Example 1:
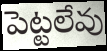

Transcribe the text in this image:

పెట్టలేవు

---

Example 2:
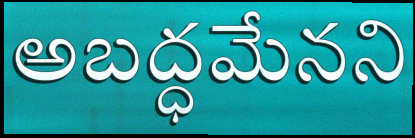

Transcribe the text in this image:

అబద్ధమేనని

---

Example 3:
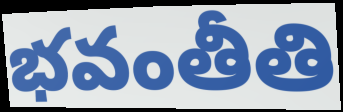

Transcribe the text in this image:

భవంతీతి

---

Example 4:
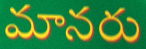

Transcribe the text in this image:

మానరు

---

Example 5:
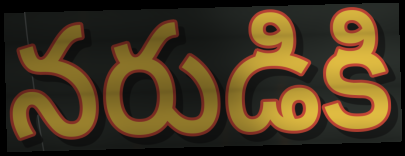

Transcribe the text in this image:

నరుడికి